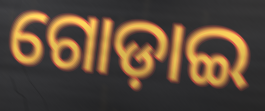
ଗୋଡ଼ାଇ